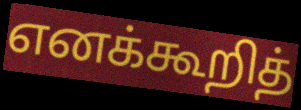
எனக்கூறித்